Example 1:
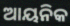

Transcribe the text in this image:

ଆୟନିକ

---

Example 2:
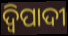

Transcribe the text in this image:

ଦ୍ୱିପାଦୀ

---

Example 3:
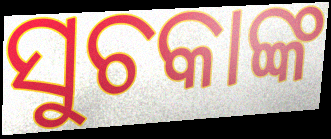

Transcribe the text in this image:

ସୁଚକାଙ୍କ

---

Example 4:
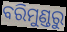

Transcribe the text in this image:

ବରିମୁଣ୍ଡରୁ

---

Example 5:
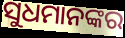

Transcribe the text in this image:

ସୁଧମାନଙ୍କର